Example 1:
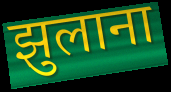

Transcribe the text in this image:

झुलाना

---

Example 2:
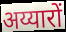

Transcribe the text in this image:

अय्यारों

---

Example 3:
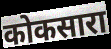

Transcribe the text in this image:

कोकसारा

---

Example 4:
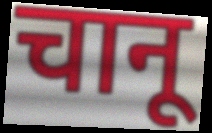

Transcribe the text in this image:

चानू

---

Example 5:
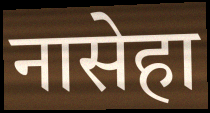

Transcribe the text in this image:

नासेहा